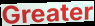
Greater